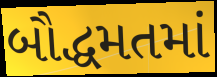
બૌદ્ધમતમાં